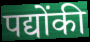
पद्योंकी